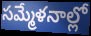
సమ్మేళనాల్లో